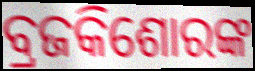
ବ୍ରଜକିଶୋରଙ୍କ